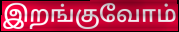
இறங்குவோம்